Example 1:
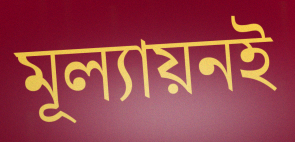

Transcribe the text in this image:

মূল্যায়নই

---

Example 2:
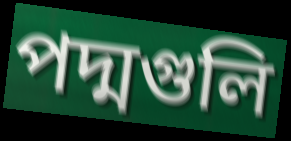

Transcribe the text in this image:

পদ্মগুলি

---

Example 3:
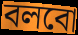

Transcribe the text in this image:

বলবো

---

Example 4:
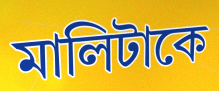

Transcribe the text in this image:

মালিটাকে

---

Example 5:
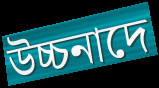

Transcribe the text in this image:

উচ্চনাদে